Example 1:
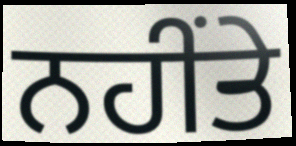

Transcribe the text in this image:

ਨਹੀਂਤੇ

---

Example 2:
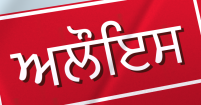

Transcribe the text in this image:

ਅਲੌਇਸ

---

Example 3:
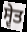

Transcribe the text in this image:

ਸ੍ਵੇਤ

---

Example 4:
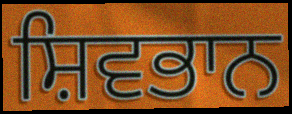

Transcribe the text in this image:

ਸ਼ਿਵਭਾਨ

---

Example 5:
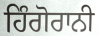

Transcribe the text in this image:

ਹਿੰਗੋਰਾਨੀ